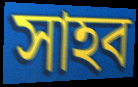
সাহব